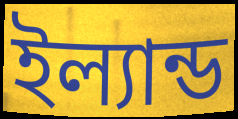
ইল্যান্ড